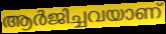
ആർജിച്ചവയാണ്